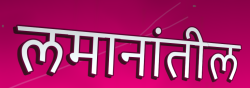
लमानांतील